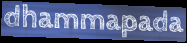
dhammapada